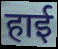
हाई